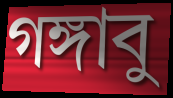
গঙ্গাবু